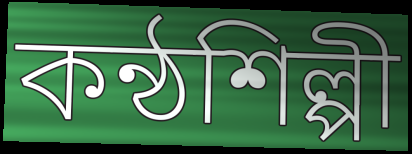
কন্ঠশিল্পী